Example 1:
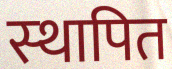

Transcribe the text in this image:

स्‍थापित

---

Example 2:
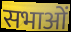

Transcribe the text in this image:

सभाओं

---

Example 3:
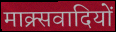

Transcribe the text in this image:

माक्र्सवादियों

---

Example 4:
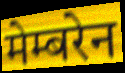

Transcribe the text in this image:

मेम्बरेन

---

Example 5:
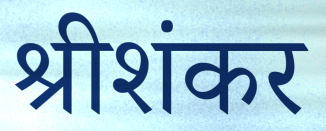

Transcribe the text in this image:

श्रीशंकर